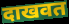
दाखवत